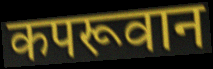
कपरूवान